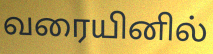
வரையினில்